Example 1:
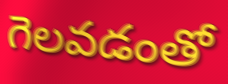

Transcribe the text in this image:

గెలవడంతో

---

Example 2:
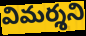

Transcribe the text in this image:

విమర్శని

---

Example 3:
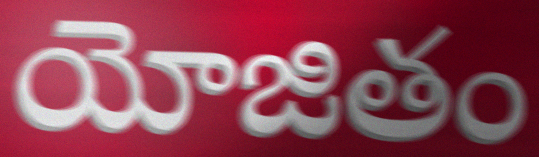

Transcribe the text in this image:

యోజితం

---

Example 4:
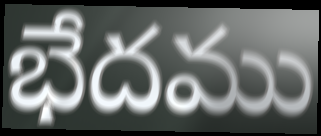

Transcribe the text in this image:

భేదము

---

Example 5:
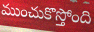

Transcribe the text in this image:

ముంచుకొస్తోంది